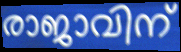
രാജാവിന്